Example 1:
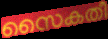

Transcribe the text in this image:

സൈകതീ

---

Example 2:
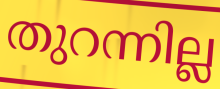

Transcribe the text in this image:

തുറന്നില്ല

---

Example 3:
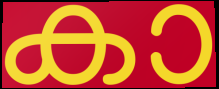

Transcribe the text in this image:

കാ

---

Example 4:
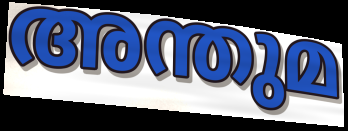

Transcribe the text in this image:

അന്തുമ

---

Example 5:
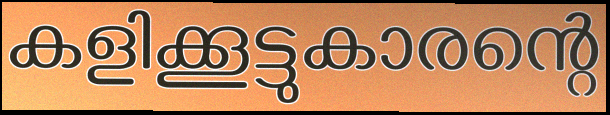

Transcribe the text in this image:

കളിക്കൂട്ടുകാരന്റെ